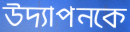
উদ্যাপনকে